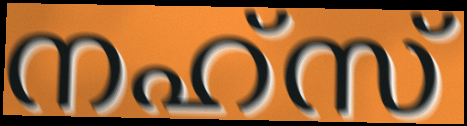
നഹ്സ്